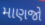
માણજો